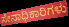
ಸೇನಾಧಿಕಾರಿಗಳು